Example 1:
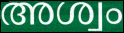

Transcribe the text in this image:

അശ്വം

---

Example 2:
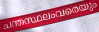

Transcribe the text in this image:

ചന്തസ്ഥലംവരെയും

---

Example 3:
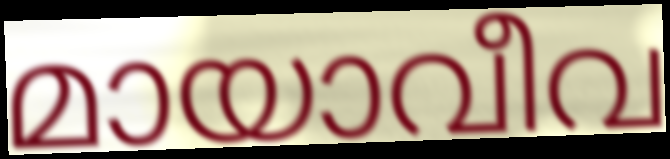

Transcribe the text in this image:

മായാവീവ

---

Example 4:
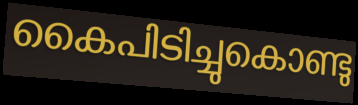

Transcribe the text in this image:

കൈപിടിച്ചുകൊണ്ടു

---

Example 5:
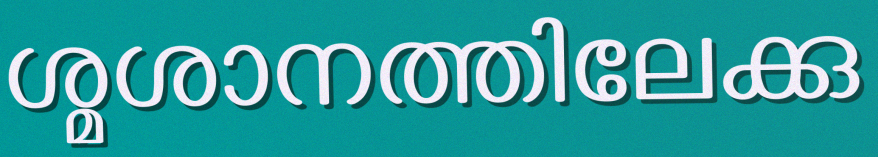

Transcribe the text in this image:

ശ്മശാനത്തിലേക്കു